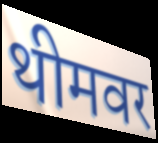
थीमवर